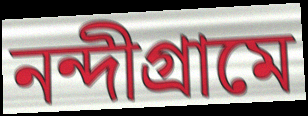
নন্দীগ্রামে